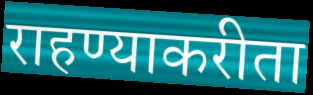
राहण्याकरीता